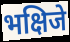
भक्षिजे